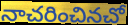
నాచరించినచో